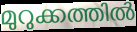
മുറുക്കത്തിൽ